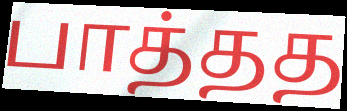
பாத்தத